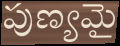
పుణ్యమై